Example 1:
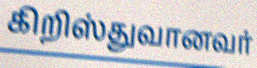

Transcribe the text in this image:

கிறிஸ்துவானவர்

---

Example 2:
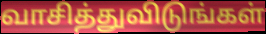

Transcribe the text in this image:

வாசித்துவிடுங்கள்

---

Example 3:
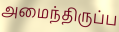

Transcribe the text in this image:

அமைந்திருப்ப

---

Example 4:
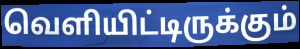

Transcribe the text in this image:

வெளியிட்டிருக்கும்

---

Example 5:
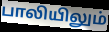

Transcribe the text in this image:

பாலியிலும்